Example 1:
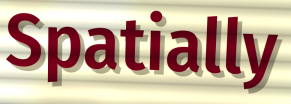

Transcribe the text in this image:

Spatially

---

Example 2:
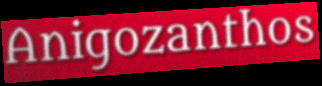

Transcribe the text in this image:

Anigozanthos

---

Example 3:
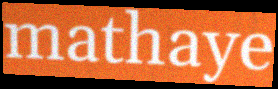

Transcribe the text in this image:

mathaye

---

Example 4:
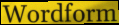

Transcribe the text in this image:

Wordform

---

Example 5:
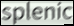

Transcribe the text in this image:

splenic